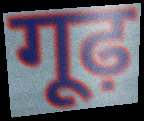
गूढ़